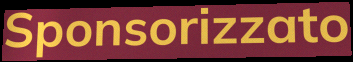
Sponsorizzato